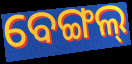
ବେଙ୍ଗଲ୍